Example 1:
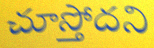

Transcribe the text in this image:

చూస్తోదని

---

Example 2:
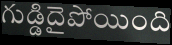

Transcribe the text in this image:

గుడ్డిదైపోయింది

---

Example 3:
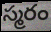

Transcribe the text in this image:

స్మరం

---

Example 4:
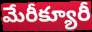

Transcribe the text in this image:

మేరీక్యూరీ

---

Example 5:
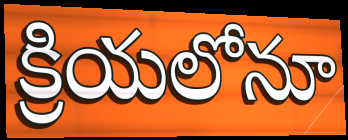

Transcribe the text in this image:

క్రియలోనూ